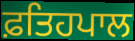
ਫ਼ਤਿਹਪਾਲ